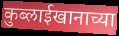
कुब्लाईखानाच्या